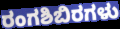
ರಂಗಶಿಬಿರಗಳು